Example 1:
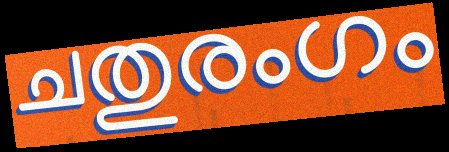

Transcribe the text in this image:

ചതുരംഗം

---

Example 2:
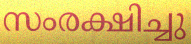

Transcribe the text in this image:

സംരക്ഷിച്ചു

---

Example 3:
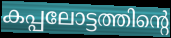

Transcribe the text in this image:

കപ്പലോട്ടത്തിന്റെ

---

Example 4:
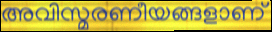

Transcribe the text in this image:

അവിസ്മരണീയങ്ങളാണ്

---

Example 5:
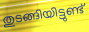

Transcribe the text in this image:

തുടങ്ങിയിട്ടുണ്ട്